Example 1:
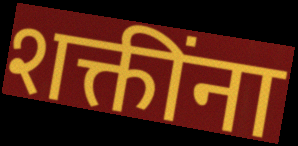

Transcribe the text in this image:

शक्तींना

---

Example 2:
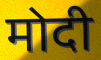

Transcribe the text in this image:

मोदी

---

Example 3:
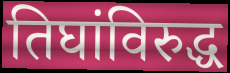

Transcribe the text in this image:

तिघांविरुद्ध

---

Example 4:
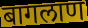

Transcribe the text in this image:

बागलाण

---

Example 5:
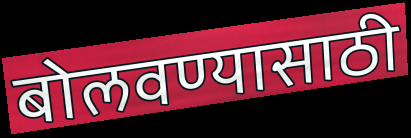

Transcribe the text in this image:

बोलवण्यासाठी